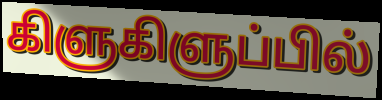
கிளுகிளுப்பில்